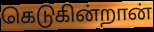
கெடுகின்றான்